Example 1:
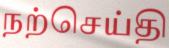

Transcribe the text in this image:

நற்செய்தி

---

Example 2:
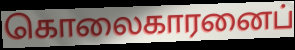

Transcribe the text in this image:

கொலைகாரனைப்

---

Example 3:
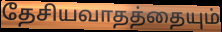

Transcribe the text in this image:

தேசியவாதத்தையும்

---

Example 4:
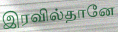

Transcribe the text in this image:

இரவில்தானே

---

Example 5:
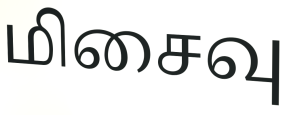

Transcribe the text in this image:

மிசைவு